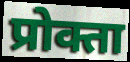
प्रोक्ता